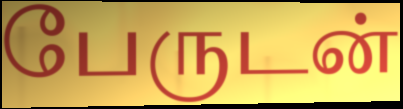
பேருடன்